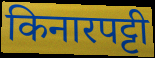
किनारपट्टी